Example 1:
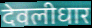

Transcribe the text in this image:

देवलीधार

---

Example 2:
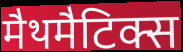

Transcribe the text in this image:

मैथमैटिक्स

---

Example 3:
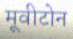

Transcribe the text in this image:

मूवीटोन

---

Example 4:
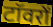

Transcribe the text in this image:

टॉवरों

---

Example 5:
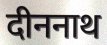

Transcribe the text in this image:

दीननाथ